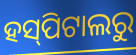
ହସ୍‌ପିଟାଲରୁ